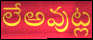
లేఅవుట్ల